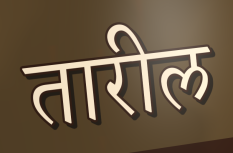
तारील